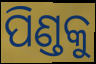
ପିଣ୍ଡକୁ